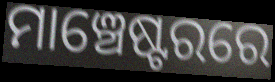
ମାଞ୍ଚେଷ୍ଟରରେ